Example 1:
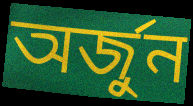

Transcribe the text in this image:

অর্জুন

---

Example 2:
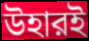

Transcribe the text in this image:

উহারই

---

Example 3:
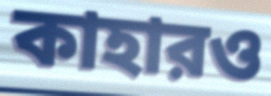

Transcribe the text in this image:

কাহারও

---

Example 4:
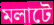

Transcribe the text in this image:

মলাটে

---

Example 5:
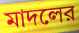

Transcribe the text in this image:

মাদলের